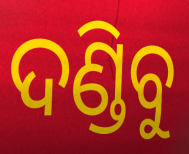
ଦଣ୍ଡିବୁ